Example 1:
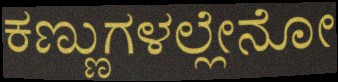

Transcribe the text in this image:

ಕಣ್ಣುಗಳಲ್ಲೇನೋ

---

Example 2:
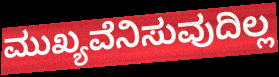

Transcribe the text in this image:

ಮುಖ್ಯವೆನಿಸುವುದಿಲ್ಲ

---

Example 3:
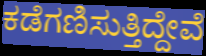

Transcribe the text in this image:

ಕಡೆಗಣಿಸುತ್ತಿದ್ದೇವೆ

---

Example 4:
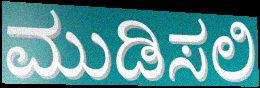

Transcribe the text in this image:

ಮುಡಿಸಲಿ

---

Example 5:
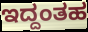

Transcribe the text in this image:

ಇದ್ದಂತಹ